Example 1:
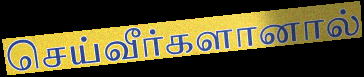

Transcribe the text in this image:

செய்வீர்களானால்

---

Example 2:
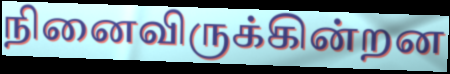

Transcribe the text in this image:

நினைவிருக்கின்றன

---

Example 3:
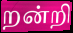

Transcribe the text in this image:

றன்றி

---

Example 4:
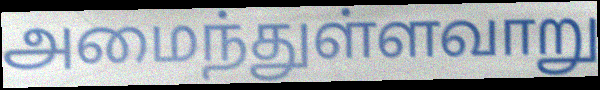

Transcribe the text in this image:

அமைந்துள்ளவாறு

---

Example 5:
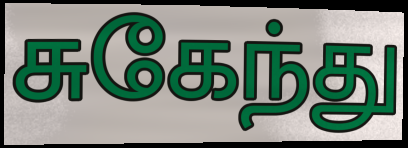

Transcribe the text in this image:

சுகேந்து